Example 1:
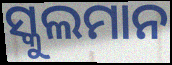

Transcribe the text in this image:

ସ୍କୁଲମାନ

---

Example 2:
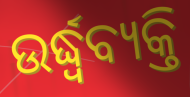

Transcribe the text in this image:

ଉର୍ଦ୍ଧ୍ୱବ୍ୟକ୍ତି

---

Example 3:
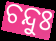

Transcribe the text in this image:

ଚନ୍ଦୁଃ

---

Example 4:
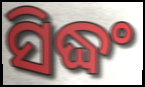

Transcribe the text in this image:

ସିଦ୍ଧଂ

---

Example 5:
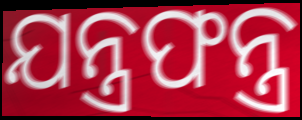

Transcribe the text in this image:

ଯନ୍ତ୍ରଫନ୍ତ୍ର